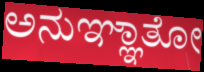
ಅನುಞ್ಞಾತೋ